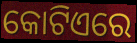
କୋଟିଏରେ